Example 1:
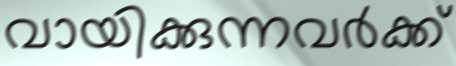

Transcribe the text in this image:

വായിക്കുന്നവർക്ക്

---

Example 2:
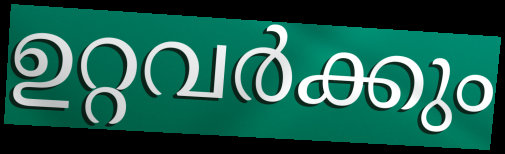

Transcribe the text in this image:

ഉറ്റവർക്കും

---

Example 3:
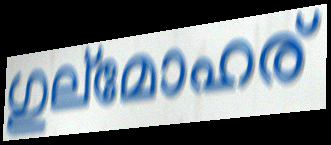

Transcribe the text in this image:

ഗുല്മോഹര്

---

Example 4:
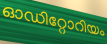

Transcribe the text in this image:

ഓഡിറ്റോറിയം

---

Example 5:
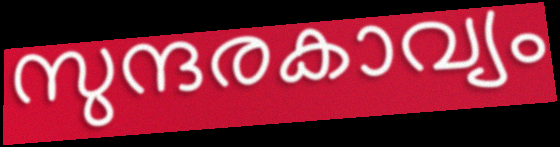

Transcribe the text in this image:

സുന്ദരകാവ്യം